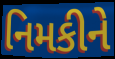
નિમકીને